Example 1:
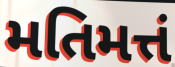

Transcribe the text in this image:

મતિમત્તં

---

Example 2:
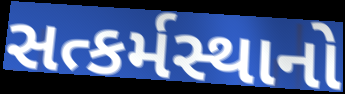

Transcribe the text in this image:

સત્કર્મસ્થાનો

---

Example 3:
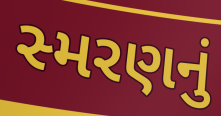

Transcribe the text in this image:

સ્મરણનું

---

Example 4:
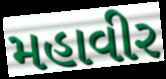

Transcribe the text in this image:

મહાવીર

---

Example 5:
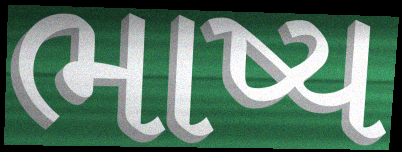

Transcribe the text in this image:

ભાષ્ય